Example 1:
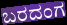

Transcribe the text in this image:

ಬರದಂಗ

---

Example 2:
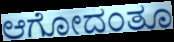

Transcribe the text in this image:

ಆಗೋದಂತೂ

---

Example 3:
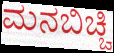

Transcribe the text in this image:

ಮನಬಿಚ್ಚಿ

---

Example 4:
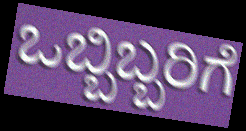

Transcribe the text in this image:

ಒಬ್ಬಿಬ್ಬರಿಗೆ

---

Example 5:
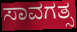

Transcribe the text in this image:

ಸಾವಗತ್ಸ